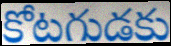
కోటగుడకు